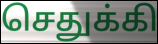
செதுக்கி